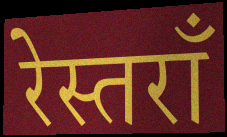
रेस्तराँ